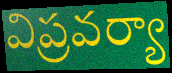
విప్రవర్యా